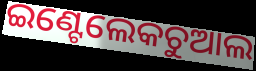
ଇଣ୍ଟେଲେକଚୁଆଲ